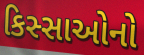
કિસ્સાઓનો